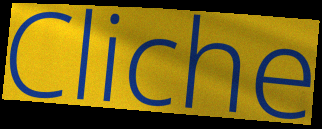
Cliche